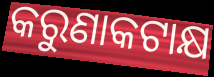
କରୁଣାକଟାକ୍ଷ